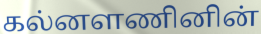
கல்னளணினின்